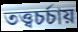
তত্ত্বচর্চায়